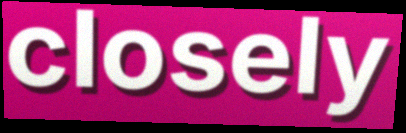
closely